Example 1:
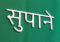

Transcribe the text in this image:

सुपाने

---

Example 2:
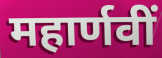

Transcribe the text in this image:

महार्णवीं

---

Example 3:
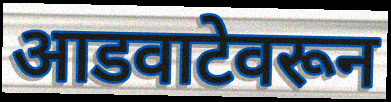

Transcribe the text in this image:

आडवाटेवरून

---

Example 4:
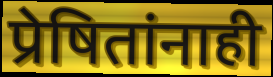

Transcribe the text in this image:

प्रेषितांनाही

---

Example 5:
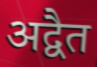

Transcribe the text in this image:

अद्वैत